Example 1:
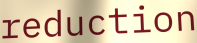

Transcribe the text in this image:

reduction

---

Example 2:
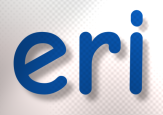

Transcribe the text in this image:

eri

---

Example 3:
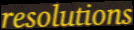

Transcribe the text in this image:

resolutions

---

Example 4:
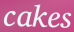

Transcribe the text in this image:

cakes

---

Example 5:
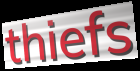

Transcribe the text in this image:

thiefs